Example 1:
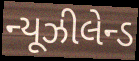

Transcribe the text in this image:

ન્યૂઝીલેન્ડ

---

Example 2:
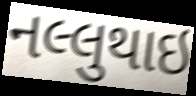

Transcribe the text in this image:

નલ્લુથાઇ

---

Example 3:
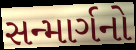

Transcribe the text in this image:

સન્માર્ગનો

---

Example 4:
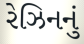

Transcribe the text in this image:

રેઝિનનું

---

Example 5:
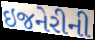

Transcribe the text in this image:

ઇજનેરીની